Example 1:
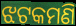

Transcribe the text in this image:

ଝଟକମଣି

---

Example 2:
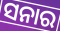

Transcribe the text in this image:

ସନାର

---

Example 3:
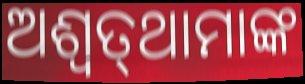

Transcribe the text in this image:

ଅଶ୍ୱତ୍‌ଥାମାଙ୍କ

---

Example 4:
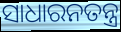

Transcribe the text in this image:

ସାଧାରନତନ୍ତ୍ର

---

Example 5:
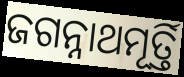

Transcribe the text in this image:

ଜଗନ୍ନାଥମୂର୍ତ୍ତି